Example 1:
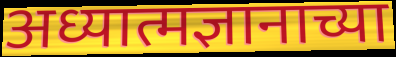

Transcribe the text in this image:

अध्यात्मज्ञानाच्या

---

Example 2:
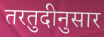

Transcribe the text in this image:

तरतुदीनुसार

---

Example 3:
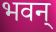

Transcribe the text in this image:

भवन्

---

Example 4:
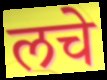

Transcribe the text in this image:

लचे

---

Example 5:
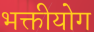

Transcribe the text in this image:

भक्तीयोग